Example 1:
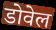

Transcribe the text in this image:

डोवेल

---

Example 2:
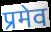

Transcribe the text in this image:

प्रमेव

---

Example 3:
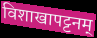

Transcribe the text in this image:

विशाखापट्टनम्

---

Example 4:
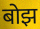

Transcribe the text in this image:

बोझ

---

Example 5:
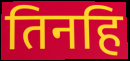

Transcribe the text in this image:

तिनहि